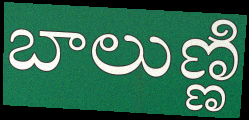
బాలుణ్ణి